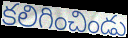
కలిగించిండు